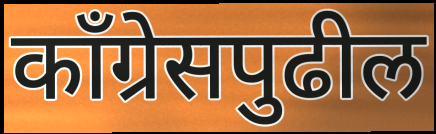
काँग्रेसपुढील